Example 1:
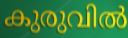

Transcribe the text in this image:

കുരുവിൽ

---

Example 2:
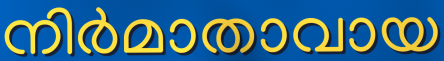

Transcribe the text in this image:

നിർമാതാവായ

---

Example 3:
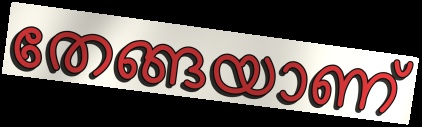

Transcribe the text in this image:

തേങ്ങയാണ്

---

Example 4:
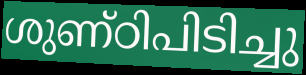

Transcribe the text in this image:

ശുണ്ഠിപിടിച്ചു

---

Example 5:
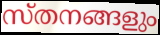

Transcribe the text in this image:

സ്തനങ്ങളും